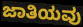
ಜಾತಿಯವು